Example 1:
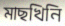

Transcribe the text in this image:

মাছখিনি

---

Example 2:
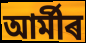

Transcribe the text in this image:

আৰ্মীৰ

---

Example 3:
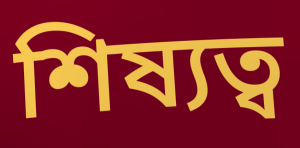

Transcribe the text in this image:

শিষ্যত্ব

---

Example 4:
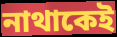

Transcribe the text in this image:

নাথাকেই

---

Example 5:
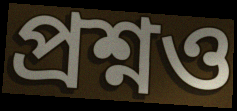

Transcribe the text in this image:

প্ৰশ্নও